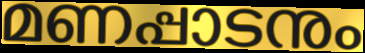
മണപ്പാടനും